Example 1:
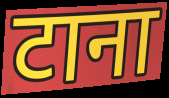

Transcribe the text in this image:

टाना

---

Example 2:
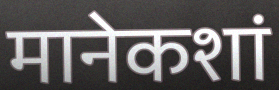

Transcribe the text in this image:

मानेकशां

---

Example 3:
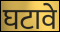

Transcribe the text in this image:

घटावे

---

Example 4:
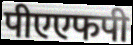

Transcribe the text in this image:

पीएएफपी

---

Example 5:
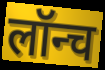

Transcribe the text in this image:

लॉन्च